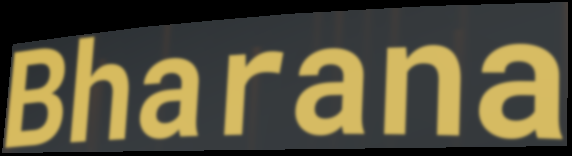
Bharana